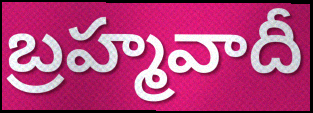
బ్రహ్మవాదీ